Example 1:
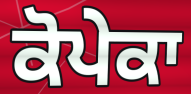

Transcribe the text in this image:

ਕੋਪੇਕਾ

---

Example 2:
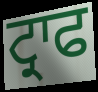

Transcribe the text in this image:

ਟ੍ਰਾਫ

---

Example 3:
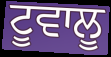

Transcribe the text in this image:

ਟੂਵਾਲੂ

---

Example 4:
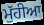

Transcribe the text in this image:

ਮੁੱਹੀਆ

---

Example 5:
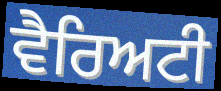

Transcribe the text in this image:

ਵੈਰਿਅਟੀ